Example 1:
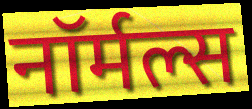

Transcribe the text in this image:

नॉर्मल्स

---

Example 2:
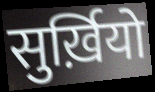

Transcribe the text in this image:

सुर्ख़ियो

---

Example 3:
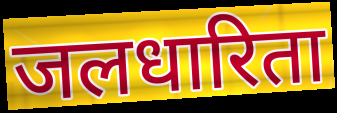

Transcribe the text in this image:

जलधारिता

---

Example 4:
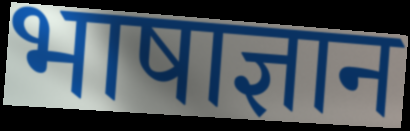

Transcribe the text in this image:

भाषाज्ञान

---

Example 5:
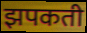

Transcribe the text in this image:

झपकती